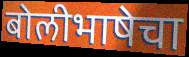
बोलीभाषेचा